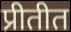
प्रीतीत